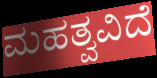
ಮಹತ್ವವಿದೆ